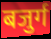
बजुर्ग